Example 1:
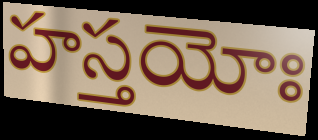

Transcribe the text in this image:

హస్తయోః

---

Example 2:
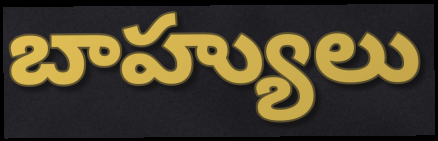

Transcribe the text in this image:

బాహ్యులు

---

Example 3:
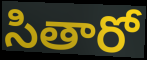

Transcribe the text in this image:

సితారో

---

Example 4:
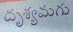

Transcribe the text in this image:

దృశ్యమగు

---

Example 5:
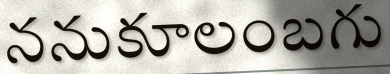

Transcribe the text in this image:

ననుకూలంబగు